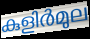
കുളിർമുല